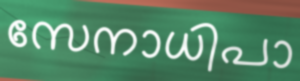
സേനാധിപാ